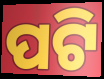
ପଟି